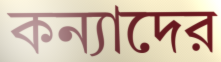
কন্যাদের